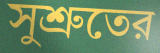
সুশ্রুতের